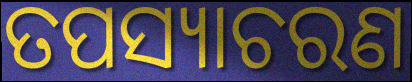
ତପସ୍ୟାଚରଣ